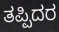
ತಪ್ಪಿದರ